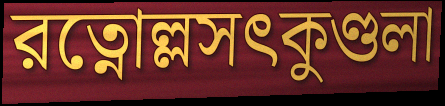
রত্নোল্লসৎকুণ্ডলা